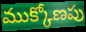
ముక్కోణపు